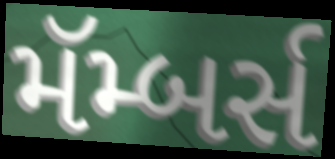
મૅમ્બર્સ